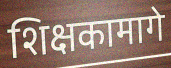
शिक्षकामागे